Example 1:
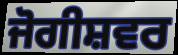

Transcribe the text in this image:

ਜੋਗੀਸ਼ਵਰ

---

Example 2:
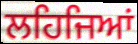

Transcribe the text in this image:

ਲਹਿਜਿਆਂ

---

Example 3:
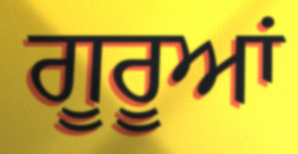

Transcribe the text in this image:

ਗੂਰੂਆਂ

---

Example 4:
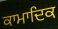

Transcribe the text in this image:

ਕਾਮਾਦਿਕ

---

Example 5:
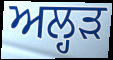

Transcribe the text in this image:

ਅਲ੍ਹੜ